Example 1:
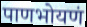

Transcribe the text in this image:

पाणभोयणं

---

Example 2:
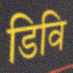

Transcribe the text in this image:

डिवि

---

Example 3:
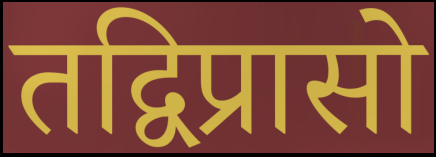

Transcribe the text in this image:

तद्विप्रासो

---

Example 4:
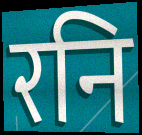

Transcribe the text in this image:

रनि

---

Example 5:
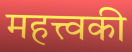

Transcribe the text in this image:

महत्त्वकी